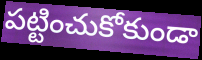
పట్టించుకోకుండా